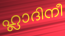
ഹ്ലാദിനീ